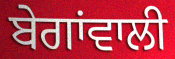
ਬੇਗਾਂਵਾਲੀ